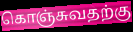
கொஞ்சுவதற்கு